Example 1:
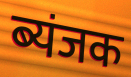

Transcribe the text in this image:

ब्यंजक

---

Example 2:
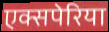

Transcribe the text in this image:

एक्सपेरिया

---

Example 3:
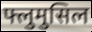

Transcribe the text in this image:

फ्लुमुसिल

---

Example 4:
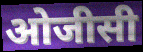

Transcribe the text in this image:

ओजीसी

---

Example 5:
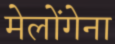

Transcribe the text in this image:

मेलोंगेना